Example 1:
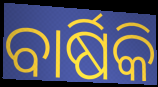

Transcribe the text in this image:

ବାର୍ଷିକି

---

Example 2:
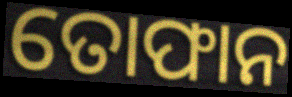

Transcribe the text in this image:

ତୋଫାନ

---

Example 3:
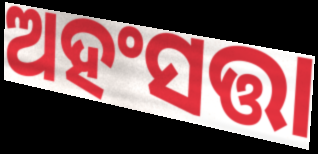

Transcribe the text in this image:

ଅହଂସତ୍ତା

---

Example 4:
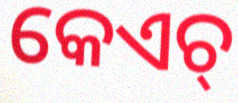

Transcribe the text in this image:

କେଏଚ୍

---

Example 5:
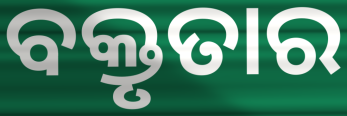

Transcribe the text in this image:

ବକ୍ତୃତାର